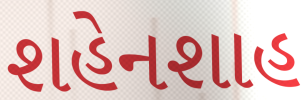
શહેનશાહ